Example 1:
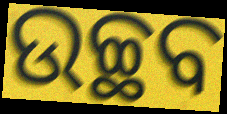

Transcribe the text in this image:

ଉଚ୍ଛବ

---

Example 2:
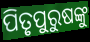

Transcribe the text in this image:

ପିତୃପୁରୁଷଙ୍କୁ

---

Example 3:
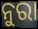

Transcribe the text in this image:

ନୁରା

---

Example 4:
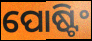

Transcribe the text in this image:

ପୋଷ୍ଟିଂ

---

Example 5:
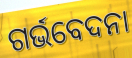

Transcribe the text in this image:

ଗର୍ଭବେଦନା